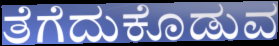
ತೆಗೆದುಕೊಡುವ